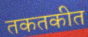
तकतकीत